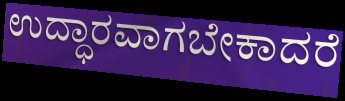
ಉದ್ಧಾರವಾಗಬೇಕಾದರೆ